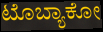
ಟೊಬ್ಯಾಕೋ